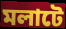
মলাটে